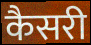
कैसरी